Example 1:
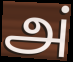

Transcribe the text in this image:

அ்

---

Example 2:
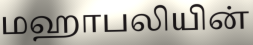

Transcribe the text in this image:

மஹாபலியின்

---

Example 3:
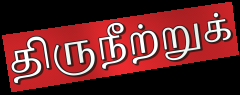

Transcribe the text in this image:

திருநீற்றுக்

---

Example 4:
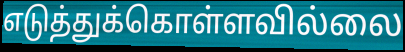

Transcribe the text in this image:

எடுத்துக்கொள்ளவில்லை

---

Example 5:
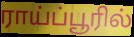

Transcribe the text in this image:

ராய்ப்பூரில்